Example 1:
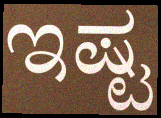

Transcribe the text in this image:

ಇಷ್ಟ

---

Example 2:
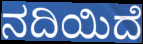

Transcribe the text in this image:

ನದಿಯಿದೆ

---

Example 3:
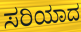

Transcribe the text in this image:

ಸರಿಯಾದ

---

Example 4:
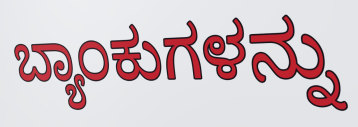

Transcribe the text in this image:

ಬ್ಯಾಂಕುಗಳನ್ನು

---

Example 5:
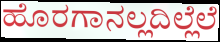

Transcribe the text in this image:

ಹೊರಗಾನಲ್ಲದಿಲ್ಲೆಲೆ